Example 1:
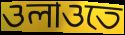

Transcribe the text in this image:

ওলাওতে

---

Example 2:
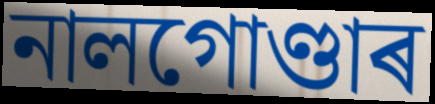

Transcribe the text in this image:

নালগোণ্ডাৰ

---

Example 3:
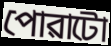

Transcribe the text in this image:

পোৱাটো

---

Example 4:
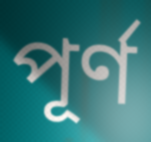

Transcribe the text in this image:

পূৰ্ণ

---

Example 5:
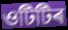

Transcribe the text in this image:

ওটিটিৰ